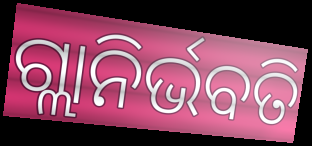
ଗ୍ଲାନିର୍ଭବତି